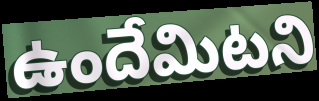
ఉందేమిటని